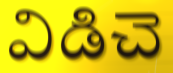
విడిచె